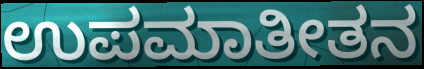
ಉಪಮಾತೀತನ